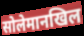
सोलेमानखिल